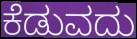
ಕೆಡುವದು